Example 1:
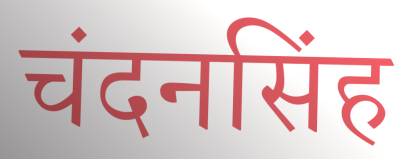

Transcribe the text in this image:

चंदनसिंह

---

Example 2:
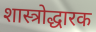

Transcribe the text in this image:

शास्त्रोद्धारक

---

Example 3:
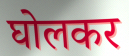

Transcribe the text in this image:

घोलकर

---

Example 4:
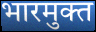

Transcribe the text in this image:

भारमुक्त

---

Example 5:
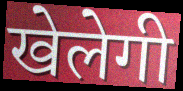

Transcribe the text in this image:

खेलेगी